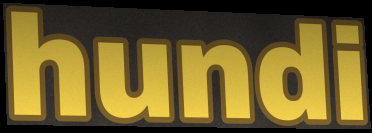
hundi